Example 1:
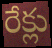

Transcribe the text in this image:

రేక్లు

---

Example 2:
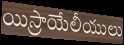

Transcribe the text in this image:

యిస్రాయేలీయులు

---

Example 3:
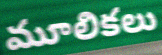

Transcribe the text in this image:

మూలికలు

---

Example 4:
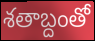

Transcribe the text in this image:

శతాబ్దంతో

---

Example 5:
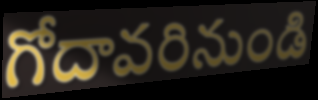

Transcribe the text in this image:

గోదావరినుండి